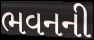
ભવનની